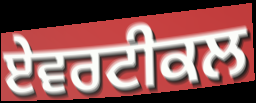
ਏਵਰਟੀਕਲ